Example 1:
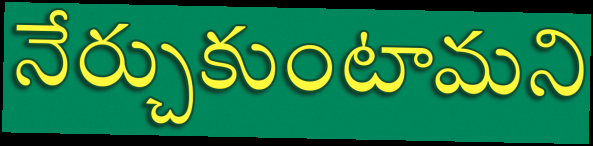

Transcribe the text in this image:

నేర్చుకుంటామని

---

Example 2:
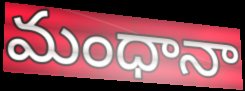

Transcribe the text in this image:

మంధానా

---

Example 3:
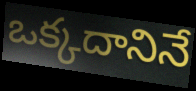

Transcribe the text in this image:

ఒక్కదానినే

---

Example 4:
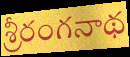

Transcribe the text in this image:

శ్రీరంగనాథ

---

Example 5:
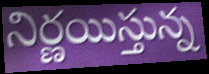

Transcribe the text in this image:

నిర్ణయిస్తున్న